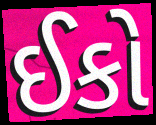
ઈકો